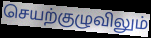
செயற்குழுவிலும்